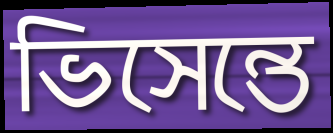
ভিসেন্তে